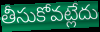
తీసుకోవట్లేదు